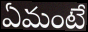
ఏమంటే